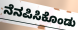
ನೆನಪಿಸಿಕೊಂಡು